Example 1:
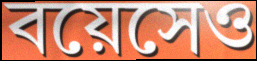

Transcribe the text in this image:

বয়েসেও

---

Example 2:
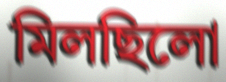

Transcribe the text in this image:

মিলছিলো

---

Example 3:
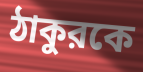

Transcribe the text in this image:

ঠাকুরকে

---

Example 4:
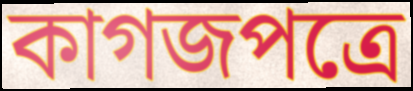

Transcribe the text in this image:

কাগজপত্রে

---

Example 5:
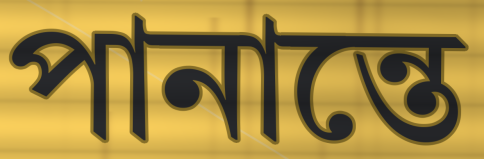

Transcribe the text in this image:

পানান্তে